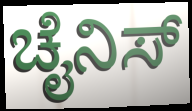
ಚೈನಿಸ್